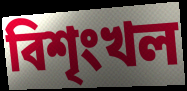
বিশৃংখল